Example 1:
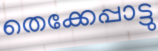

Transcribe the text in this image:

തെക്കേപ്പാട്ടു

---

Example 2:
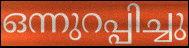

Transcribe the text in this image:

ഒന്നുറപ്പിച്ചു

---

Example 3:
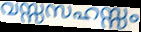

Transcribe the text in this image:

വസ്സസഹസ്സം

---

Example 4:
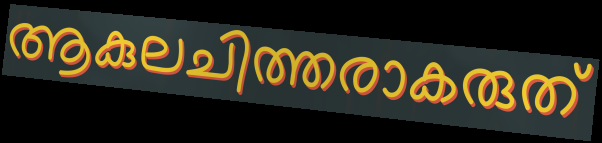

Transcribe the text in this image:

ആകുലചിത്തരാകരുത്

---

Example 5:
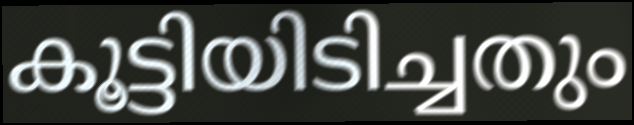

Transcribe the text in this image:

കൂട്ടിയിടിച്ചതും